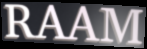
RAAM